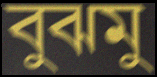
বুঝমু